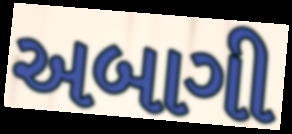
અબાગી